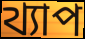
থ্যাপ